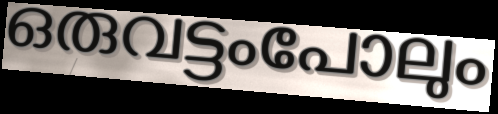
ഒരുവട്ടംപോലും